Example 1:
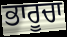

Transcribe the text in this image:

ਭਾਰੂਚਾ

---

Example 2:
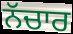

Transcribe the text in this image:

ਨੱਚਾਰ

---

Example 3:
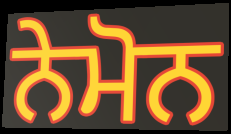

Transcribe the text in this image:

ਨੇਮੋਨ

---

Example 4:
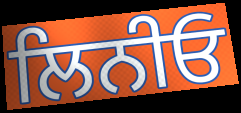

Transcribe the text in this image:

ਲਿਨੀਓ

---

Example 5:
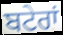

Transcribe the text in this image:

ਬਟੇਰਾਂ